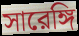
সারেঙ্গি